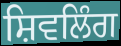
ਸ਼ਿਵਲਿੰਗ